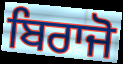
ਬਿਰਾਜੋ